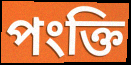
পংক্তি